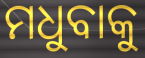
ମଧୁବାକୁ